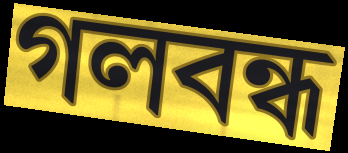
গলবন্ধ